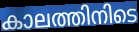
കാലത്തിനിടെ